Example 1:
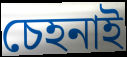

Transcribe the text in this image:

চেহনাই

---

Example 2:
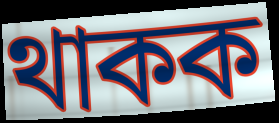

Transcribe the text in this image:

থাকক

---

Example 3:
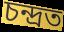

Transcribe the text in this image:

চন্দ্ৰত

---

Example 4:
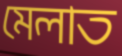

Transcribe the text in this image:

মেলাত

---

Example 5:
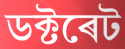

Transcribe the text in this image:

ডক্টৰেট